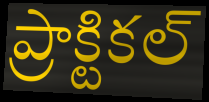
ప్రాక్టికల్